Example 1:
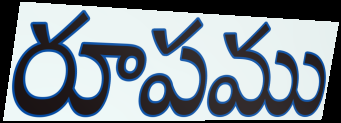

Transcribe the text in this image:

రూపము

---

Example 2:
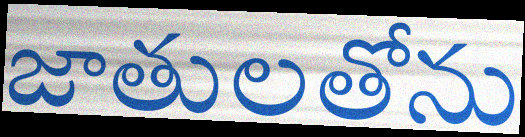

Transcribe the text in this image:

జాతులతోను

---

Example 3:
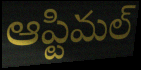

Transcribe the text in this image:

ఆప్టిమల్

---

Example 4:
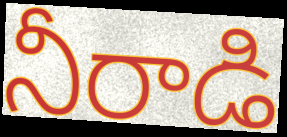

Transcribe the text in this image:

నీరాడి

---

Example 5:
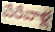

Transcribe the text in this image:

వేరేవాళ్ల